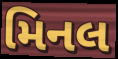
મિનલ